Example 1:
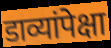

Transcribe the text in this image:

डाव्यांपेक्षा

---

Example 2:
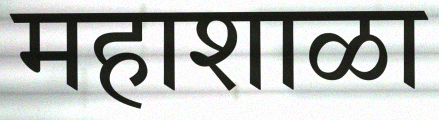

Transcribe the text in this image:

महाशाळा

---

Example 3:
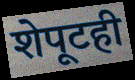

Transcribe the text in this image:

शेपूटही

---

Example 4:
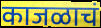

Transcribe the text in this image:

काजळाचं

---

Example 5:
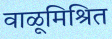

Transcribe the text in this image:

वाळूमिश्रित